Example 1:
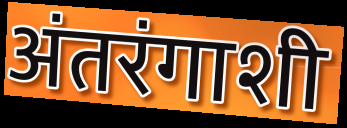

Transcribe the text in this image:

अंतरंगाशी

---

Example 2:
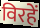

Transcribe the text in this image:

विरहें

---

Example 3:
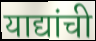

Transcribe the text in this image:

याद्यांची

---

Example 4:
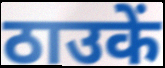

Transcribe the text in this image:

ठाउकें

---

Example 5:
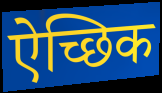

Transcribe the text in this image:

ऐच्छिक